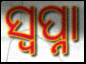
ସ୍ୱପ୍ନା